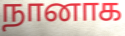
நானாக